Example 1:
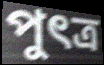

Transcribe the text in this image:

পুৎত্র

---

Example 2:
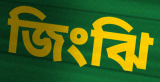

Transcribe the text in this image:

জিংঝি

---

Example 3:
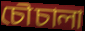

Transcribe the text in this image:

চৌচালা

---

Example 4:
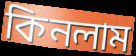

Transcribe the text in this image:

কিনলাম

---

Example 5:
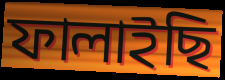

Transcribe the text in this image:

ফালাইছি